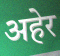
अहेर